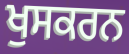
ਖੁਸਕਰਨ